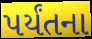
પર્યંતના